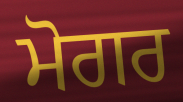
ਮੋਗਰ